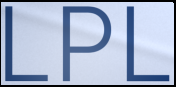
LPL